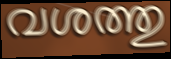
വശത്തു